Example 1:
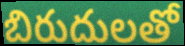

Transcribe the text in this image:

బిరుదులతో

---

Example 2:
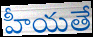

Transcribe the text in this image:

హీయతే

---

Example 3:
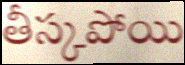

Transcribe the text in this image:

తీస్కపోయి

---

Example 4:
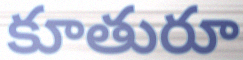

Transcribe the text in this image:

కూతురూ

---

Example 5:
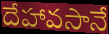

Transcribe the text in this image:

దేహావసానే